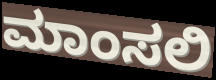
ಮಾಂಸಲಿ